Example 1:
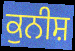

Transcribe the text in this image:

ਕੁਨੀਸ਼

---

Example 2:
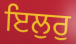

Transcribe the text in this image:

ਇਲੁਰੁ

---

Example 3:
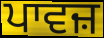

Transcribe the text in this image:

ਪਾਵਜ਼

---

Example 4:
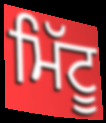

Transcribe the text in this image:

ਮਿੱਟੂ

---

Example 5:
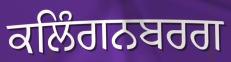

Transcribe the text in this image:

ਕਲਿੰਗਨਬਰਗ